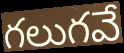
గలుగవే